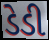
ડેડી